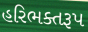
હરિભક્તરૂપ